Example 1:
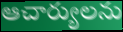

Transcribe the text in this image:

ఆచార్యులను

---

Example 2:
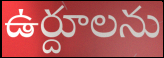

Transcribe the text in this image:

ఉర్దూలను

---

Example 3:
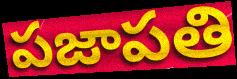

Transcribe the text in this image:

పజాపతి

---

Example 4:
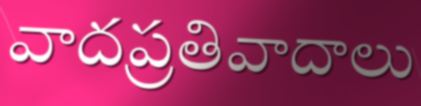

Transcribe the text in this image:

వాదప్రతివాదాలు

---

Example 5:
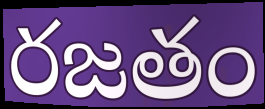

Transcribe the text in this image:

రజతం